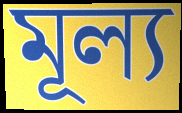
মূল্য